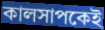
কালসাপকেই